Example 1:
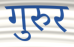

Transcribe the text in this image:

गुरुर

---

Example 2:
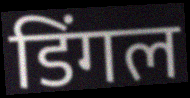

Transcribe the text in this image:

डिंगल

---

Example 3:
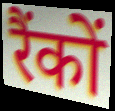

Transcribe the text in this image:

रैंकों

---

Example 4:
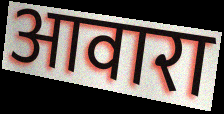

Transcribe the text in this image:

आवारा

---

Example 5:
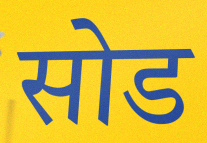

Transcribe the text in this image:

सोड